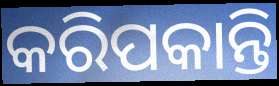
କରିପକାନ୍ତି